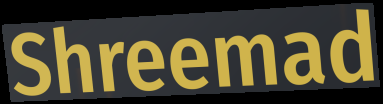
Shreemad